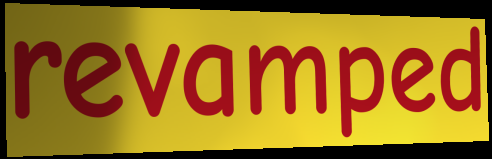
revamped